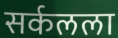
सर्कलला